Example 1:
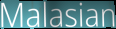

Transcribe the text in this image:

Malasian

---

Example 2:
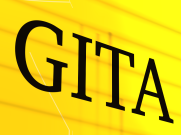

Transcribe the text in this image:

GITA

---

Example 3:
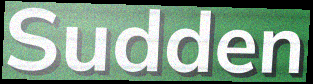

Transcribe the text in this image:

Sudden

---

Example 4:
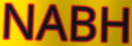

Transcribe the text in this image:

NABH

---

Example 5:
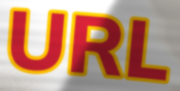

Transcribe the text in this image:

URL